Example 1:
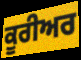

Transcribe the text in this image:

ਕੂਰੀਅਰ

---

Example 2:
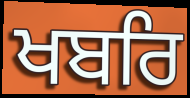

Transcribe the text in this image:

ਖਬਰਿ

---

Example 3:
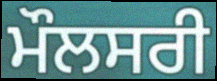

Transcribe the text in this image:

ਮੌਲਸਰੀ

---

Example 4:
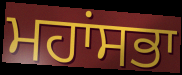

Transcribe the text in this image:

ਮਹਾਂਸਭਾ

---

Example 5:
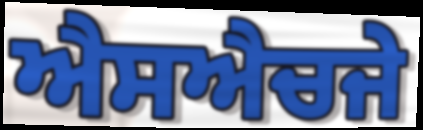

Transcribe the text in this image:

ਐਸਐਚਜੇ